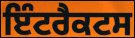
ਇੰਟਰੈਕਟਸ